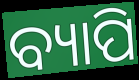
ବ୍ୟାପି